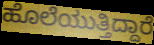
ಹೊಲೆಯುತ್ತಿದ್ದಾರೆ